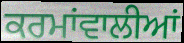
ਕਰਮਾਂਵਾਲੀਆਂ